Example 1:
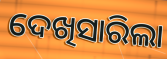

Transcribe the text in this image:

ଦେଖିସାରିଲା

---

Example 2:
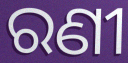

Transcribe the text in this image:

ରଣୀ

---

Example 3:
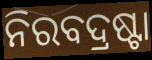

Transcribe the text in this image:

ନିରବଦ୍ରଷ୍ଟା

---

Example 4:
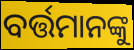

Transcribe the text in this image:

ବର୍ତ୍ତମାନଙ୍କୁ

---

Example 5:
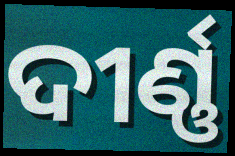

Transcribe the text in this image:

ଦୀର୍ଣ୍ଣ